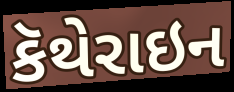
કૅથેરાઇન